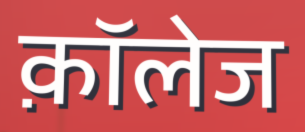
क़ॉलेज